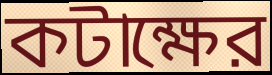
কটাক্ষের